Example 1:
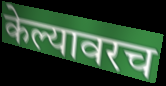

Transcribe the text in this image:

केल्यावरच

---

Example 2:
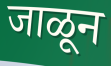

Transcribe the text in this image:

जाळून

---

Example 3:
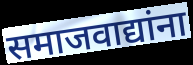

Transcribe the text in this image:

समाजवाद्यांना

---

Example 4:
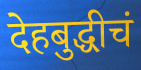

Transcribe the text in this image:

देहबुद्धीचं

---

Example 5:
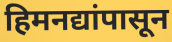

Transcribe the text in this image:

हिमनद्यांपासून